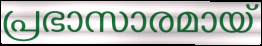
പ്രഭാസാരമായ്